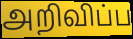
அறிவிப்ப